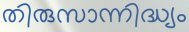
തിരുസാന്നിദ്ധ്യം